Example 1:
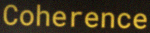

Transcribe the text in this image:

Coherence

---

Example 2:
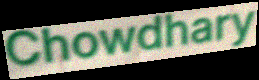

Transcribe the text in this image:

Chowdhary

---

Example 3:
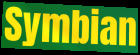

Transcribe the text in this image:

Symbian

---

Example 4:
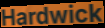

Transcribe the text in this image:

Hardwick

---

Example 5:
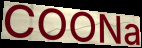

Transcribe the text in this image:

COONa